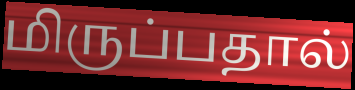
மிருப்பதால்